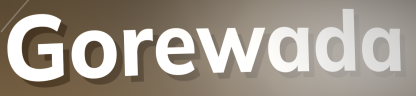
Gorewada